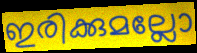
ഇരിക്കുമല്ലോ